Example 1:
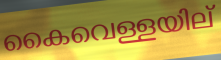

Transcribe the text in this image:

കൈവെള്ളയില്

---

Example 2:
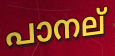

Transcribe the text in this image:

പാനല്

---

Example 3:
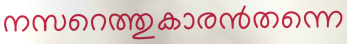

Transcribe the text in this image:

നസറെത്തുകാരൻതന്നെ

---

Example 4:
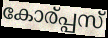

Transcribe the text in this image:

കോര്പ്പസ്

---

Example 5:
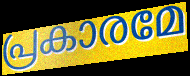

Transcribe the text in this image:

പ്രകാരമേ